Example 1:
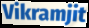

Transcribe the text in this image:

Vikramjit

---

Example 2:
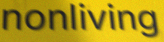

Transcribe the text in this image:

nonliving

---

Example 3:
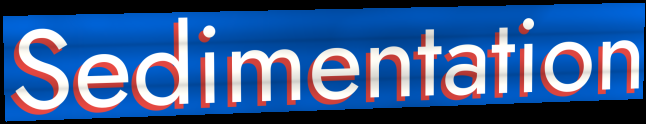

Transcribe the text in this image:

Sedimentation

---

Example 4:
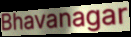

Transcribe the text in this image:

Bhavanagar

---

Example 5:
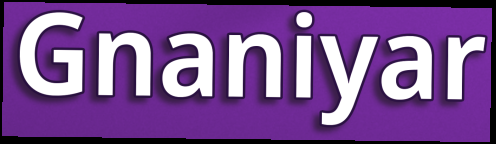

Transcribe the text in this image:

Gnaniyar